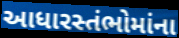
આધારસ્તંભોમાંના